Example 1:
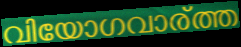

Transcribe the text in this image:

വിയോഗവാര്ത്ത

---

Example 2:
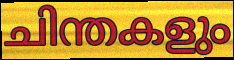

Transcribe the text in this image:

ചിന്തകളും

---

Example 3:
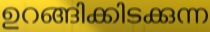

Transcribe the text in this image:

ഉറങ്ങിക്കിടക്കുന്ന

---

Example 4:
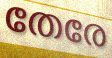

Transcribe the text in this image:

തേരേ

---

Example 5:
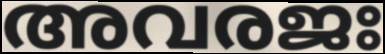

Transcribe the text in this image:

അവരജഃ